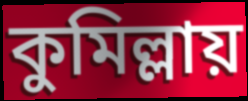
কুমিল্লায়